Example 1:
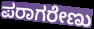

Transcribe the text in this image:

ಪರಾಗರೇಣು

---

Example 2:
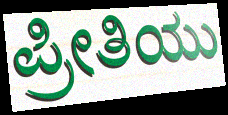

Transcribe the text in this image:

ಪ್ರೀತಿಯು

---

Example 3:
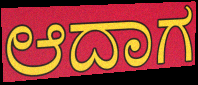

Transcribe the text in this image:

ಆದಾಗ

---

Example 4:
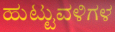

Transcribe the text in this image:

ಹುಟ್ಟುವಳಿಗಳ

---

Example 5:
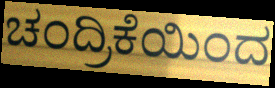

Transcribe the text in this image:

ಚಂದ್ರಿಕೆಯಿಂದ